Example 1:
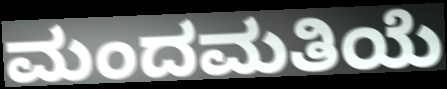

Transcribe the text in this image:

ಮಂದಮತಿಯೆ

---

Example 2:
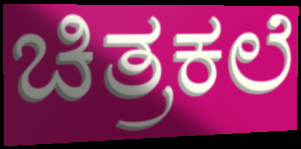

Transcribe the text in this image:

ಚಿತ್ರಕಲೆ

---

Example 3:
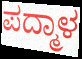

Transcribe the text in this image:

ಪದ್ಮಾಳ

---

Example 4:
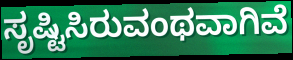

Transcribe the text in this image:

ಸೃಷ್ಟಿಸಿರುವಂಥವಾಗಿವೆ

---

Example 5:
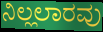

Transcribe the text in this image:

ನಿಲ್ಲಲಾರವು